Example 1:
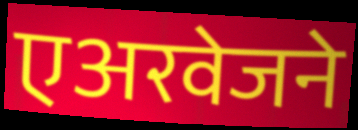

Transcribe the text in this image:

एअरवेजने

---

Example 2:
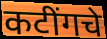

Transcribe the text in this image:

कटींगचे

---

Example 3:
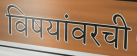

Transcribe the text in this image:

विषयांवरची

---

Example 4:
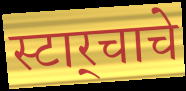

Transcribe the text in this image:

स्टार्चाचे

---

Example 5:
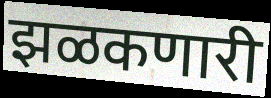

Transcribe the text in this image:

झळकणारी